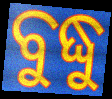
ବୁଦ୍ଧୁ